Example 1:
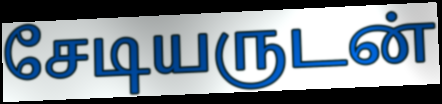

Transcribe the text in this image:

சேடியருடன்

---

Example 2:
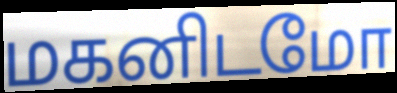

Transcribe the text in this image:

மகனிடமோ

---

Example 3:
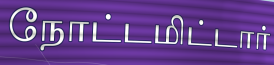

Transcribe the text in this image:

நோட்டமிட்டார்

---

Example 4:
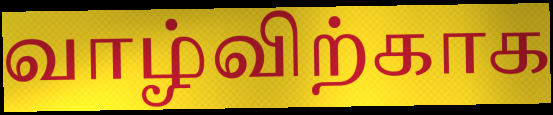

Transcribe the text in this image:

வாழ்விற்காக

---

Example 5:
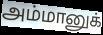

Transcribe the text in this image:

அம்மானுக்